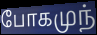
போகமுந்